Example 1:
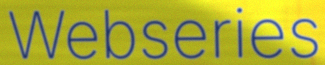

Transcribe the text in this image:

Webseries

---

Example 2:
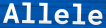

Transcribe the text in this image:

Allele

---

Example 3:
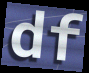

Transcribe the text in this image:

df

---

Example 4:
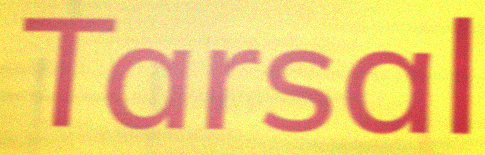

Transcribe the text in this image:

Tarsal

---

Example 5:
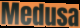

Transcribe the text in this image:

Medusa